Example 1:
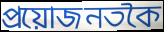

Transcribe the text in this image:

প্ৰয়োজনতকৈ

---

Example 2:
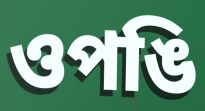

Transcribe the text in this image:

ওপঙি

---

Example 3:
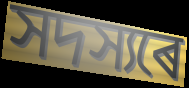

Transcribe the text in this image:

সদস্যৰে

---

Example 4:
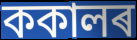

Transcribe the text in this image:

ককালৰ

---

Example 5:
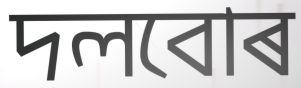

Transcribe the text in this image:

দলবোৰ